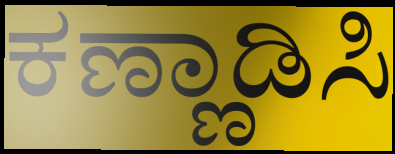
ಕಣ್ಣಾಡಿಸಿ